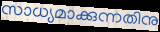
സാധ്യമാക്കുന്നതിനു